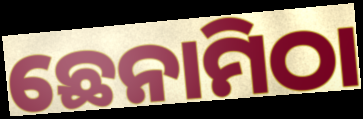
ଛେନାମିଠା